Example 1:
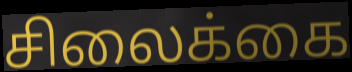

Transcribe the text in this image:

சிலைக்கை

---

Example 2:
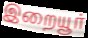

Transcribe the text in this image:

இறையூர்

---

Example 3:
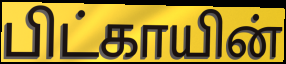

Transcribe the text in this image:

பிட்காயின்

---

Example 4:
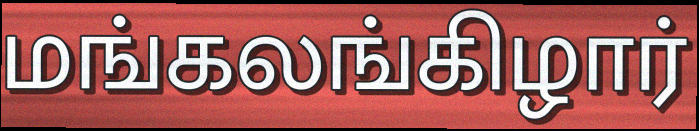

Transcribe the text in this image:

மங்கலங்கிழார்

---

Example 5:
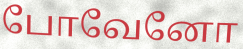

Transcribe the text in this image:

போவேனோ